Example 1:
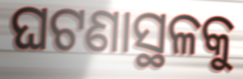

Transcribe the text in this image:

ଘଟଣାସ୍ଥଳକୁ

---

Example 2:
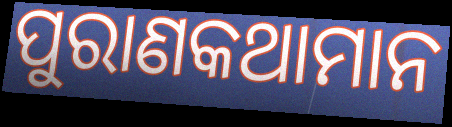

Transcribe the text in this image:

ପୁରାଣକଥାମାନ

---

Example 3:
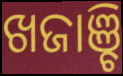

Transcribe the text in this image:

ଖଜାଞ୍ଚି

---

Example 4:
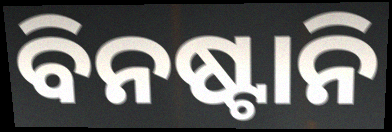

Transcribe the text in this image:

ବିନଷ୍ଟାନି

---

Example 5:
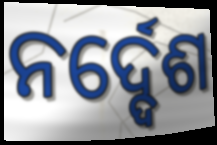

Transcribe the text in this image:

ନର୍ଦ୍ଦେଶ